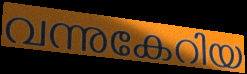
വന്നുകേറിയ